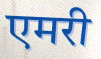
एमरी